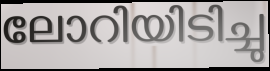
ലോറിയിടിച്ചു